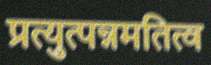
प्रत्युत्पन्नमतित्व